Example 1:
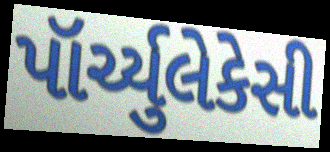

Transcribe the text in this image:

પૉર્ચ્યુલેકેસી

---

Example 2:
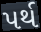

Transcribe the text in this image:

પર્થ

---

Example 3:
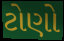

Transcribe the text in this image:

ટોણો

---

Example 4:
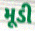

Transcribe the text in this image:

મૂડી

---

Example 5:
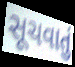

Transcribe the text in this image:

સૂચવાતું